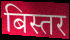
बिस्तर